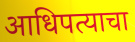
आधिपत्याचा